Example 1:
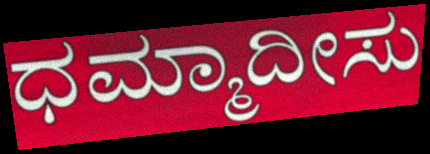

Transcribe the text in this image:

ಧಮ್ಮಾದೀಸು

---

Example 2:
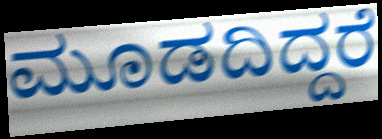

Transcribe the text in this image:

ಮೂಡದಿದ್ದರೆ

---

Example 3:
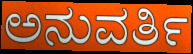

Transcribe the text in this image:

ಅನುವರ್ತಿ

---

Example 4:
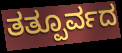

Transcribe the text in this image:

ತತ್ಪೂರ್ವದ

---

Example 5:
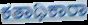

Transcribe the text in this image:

ಕತಾಧಿಕಾರಾ